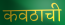
कवठाची